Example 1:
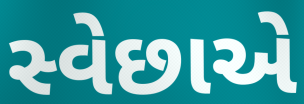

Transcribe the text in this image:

સ્વેછાએ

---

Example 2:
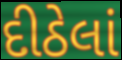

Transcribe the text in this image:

દીઠેલાં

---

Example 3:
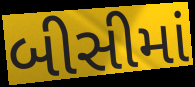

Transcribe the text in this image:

બીસીમાં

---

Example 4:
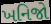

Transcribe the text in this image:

ખનિજો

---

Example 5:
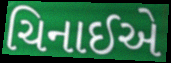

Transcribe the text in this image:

ચિનાઈએ